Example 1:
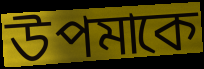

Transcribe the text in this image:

উপমাকে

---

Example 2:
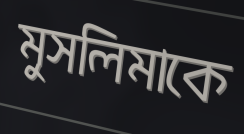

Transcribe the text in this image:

মুসলিমাকে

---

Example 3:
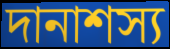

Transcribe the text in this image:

দানাশস্য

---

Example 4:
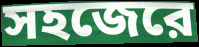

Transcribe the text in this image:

সহজেরে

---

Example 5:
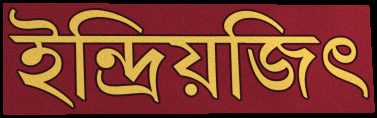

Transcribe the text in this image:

ইন্দ্রিয়জিৎ